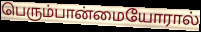
பெரும்பான்மையோரால்